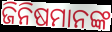
ଜିନିଷମାନଙ୍କ